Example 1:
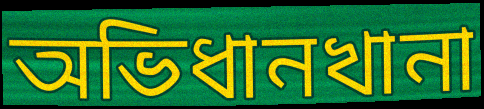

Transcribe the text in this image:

অভিধানখানা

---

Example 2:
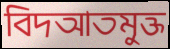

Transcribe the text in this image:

বিদআতমুক্ত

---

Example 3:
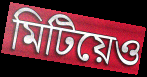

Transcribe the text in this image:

মিটিয়েও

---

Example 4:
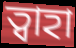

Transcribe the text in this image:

ত্বাহা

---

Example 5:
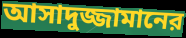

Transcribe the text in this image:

আসাদুজ্জামানের